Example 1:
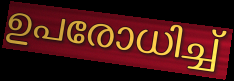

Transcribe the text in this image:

ഉപരോധിച്ച്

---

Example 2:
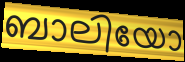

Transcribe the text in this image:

ബാലിയോ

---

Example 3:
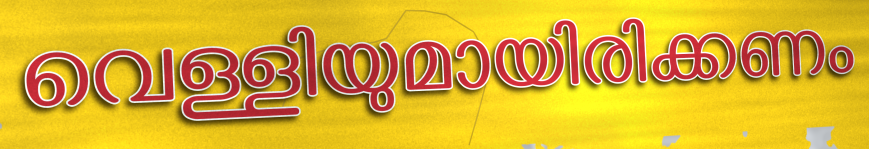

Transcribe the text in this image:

വെള്ളിയുമായിരിക്കണം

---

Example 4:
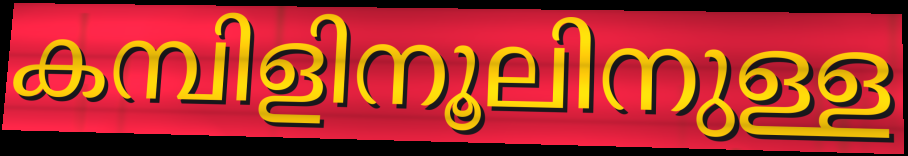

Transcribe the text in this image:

കമ്പിളിനൂലിനുള്ള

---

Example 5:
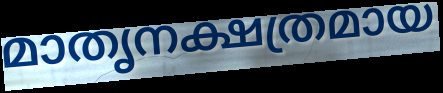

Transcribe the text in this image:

മാതൃനക്ഷത്രമായ